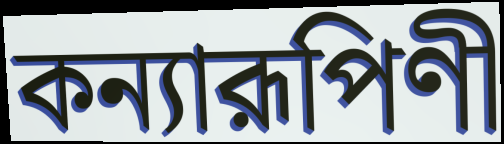
কন্যারূপিণী